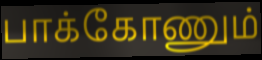
பாக்கோணும்